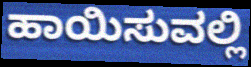
ಹಾಯಿಸುವಲ್ಲಿ